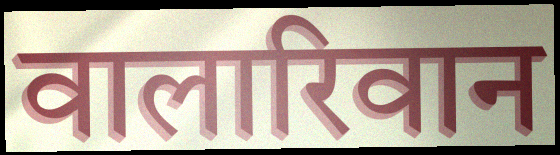
वालारिवान